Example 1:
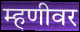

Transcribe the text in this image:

म्हणीवर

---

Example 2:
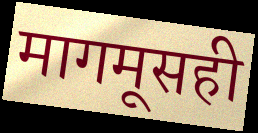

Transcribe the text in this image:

मागमूसही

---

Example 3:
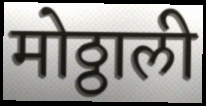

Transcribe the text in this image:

मोठ्ठाली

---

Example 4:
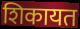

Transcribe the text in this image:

शिकायत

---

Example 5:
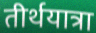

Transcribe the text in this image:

तीर्थयात्रा